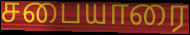
சபையாரை